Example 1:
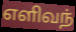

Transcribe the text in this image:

எளிவந்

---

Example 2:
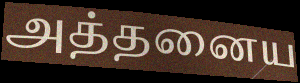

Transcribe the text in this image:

அத்தனைய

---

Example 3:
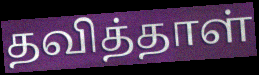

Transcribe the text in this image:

தவித்தாள்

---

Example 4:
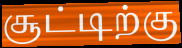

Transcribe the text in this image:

சூட்டிற்கு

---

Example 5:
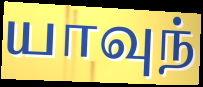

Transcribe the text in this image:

யாவுந்